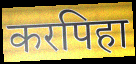
करपिहा